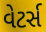
વેટર્સ